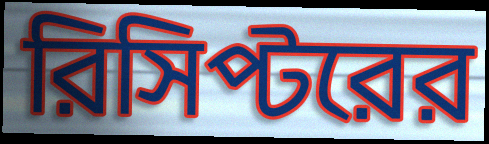
রিসিপ্টরের